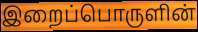
இறைப்பொருளின்